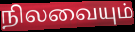
நிலவையும்